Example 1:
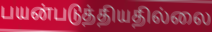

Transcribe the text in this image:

பயன்படுத்தியதில்லை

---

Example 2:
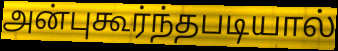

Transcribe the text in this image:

அன்புகூர்ந்தபடியால்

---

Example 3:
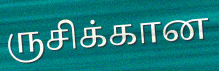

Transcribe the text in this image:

ருசிக்கான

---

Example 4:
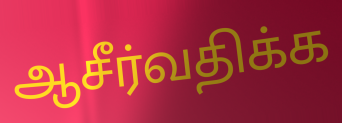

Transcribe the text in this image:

ஆசீர்வதிக்க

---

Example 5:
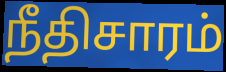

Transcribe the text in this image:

நீதிசாரம்